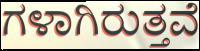
ಗಳಾಗಿರುತ್ತವೆ